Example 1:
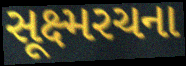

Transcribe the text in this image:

સૂક્ષ્મરચના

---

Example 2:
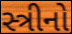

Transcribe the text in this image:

સ્ત્રીનો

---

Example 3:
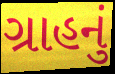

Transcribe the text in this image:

ગ્રાહનું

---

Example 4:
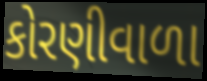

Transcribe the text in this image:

કોરણીવાળા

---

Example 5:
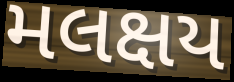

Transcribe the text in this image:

મલક્ષય